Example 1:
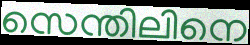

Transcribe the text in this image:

സെന്തിലിനെ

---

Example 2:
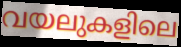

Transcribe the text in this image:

വയലുകളിലെ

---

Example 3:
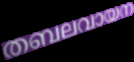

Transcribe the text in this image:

തബലവായന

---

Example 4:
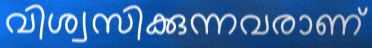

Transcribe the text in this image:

വിശ്വസിക്കുന്നവരാണ്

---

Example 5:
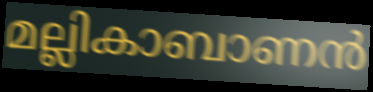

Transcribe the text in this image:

മല്ലികാബാണൻ